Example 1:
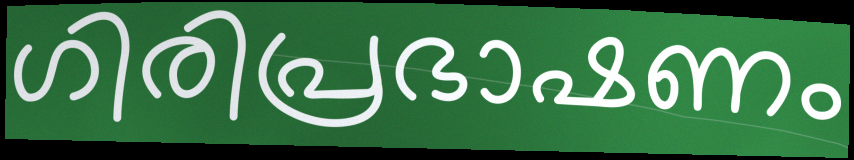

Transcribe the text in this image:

ഗിരിപ്രഭാഷണം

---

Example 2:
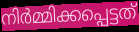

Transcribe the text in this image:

നിർമ്മിക്കപ്പെട്ടത്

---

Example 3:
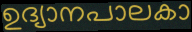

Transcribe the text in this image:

ഉദ്യാനപാലകാ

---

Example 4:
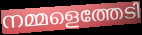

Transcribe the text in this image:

നമ്മളെത്തേടി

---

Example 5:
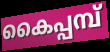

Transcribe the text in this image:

കൈപ്പമ്പ്